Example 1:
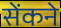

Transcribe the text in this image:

सेंकने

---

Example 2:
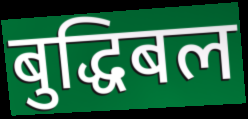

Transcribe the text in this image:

बुद्धिबल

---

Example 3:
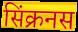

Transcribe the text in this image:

सिंक्रनस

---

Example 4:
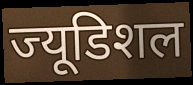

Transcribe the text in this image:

ज्यूडिशल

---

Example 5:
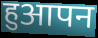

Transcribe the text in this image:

हुआपन